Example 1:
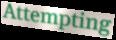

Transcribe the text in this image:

Attempting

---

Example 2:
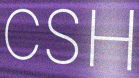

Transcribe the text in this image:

CSH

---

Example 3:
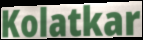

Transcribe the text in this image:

Kolatkar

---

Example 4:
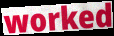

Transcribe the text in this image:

worked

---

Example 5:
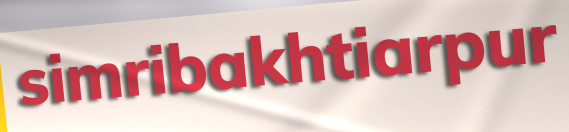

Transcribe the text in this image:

simribakhtiarpur